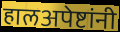
हालअपेष्टांनी